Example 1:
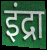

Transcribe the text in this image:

इंद्रा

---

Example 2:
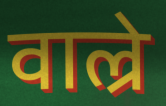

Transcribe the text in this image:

वाल्रे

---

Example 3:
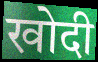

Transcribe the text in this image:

खोदी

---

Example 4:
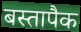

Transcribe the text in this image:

बस्तापैक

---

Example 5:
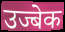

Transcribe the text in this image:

उज्बेक